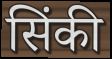
सिंकी